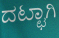
ದಟ್ಟಾಗಿ